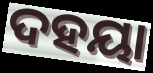
ଦହୟା